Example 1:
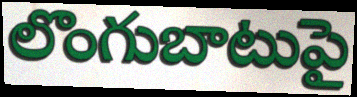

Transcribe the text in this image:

లొంగుబాటుపై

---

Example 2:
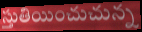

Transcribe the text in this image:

స్తుతియించుచున్న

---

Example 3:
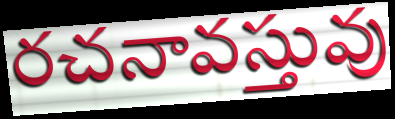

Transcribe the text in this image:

రచనావస్తువు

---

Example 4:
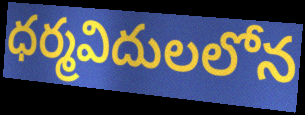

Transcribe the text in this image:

ధర్మవిదులలోన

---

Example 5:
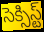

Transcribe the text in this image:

సెక్సిస్ట్